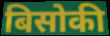
बिसोकी